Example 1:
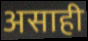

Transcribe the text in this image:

असाही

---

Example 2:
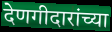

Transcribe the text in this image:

देणगीदारांच्या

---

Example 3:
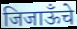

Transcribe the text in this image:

जिजाऊँचे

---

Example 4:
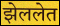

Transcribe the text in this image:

झेललेत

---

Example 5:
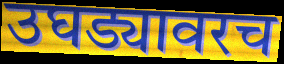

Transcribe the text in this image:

उघड्यावरच